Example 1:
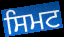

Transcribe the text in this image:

ਸਿਮਟ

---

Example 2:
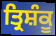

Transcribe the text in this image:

ਤ੍ਰਿਸ਼ੰਕੂ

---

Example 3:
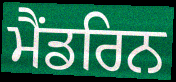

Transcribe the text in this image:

ਮੈਂਡਰਿਨ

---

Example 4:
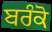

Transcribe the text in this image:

ਬਰੰਕੋ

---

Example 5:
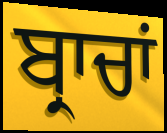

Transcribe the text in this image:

ਬ੍ਰਾਚਾਂ